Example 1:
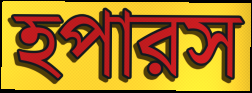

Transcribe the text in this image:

হপারস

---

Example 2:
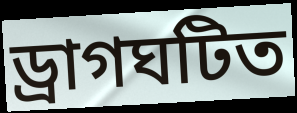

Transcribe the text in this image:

ড্রাগঘটিত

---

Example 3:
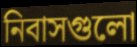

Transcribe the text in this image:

নিবাসগুলো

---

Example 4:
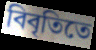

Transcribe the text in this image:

বিবৃতিতে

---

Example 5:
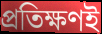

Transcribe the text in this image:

প্রতিক্ষণই